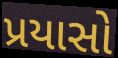
પ્રયાસો